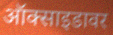
ऑक्साइडावर